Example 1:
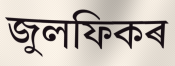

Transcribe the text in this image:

জুলফিকৰ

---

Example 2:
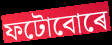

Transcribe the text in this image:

ফটোবোৰে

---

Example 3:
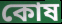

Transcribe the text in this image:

কোষ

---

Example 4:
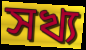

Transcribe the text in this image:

সখ্য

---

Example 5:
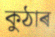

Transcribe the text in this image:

কুঠাৰ